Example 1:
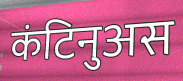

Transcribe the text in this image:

कंटिनुअस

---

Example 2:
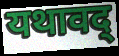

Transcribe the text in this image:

यथावद्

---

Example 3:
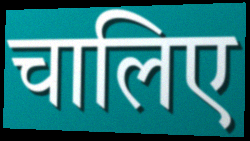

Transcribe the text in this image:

चालिए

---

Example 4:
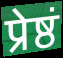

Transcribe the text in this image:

प्रेष्ठं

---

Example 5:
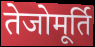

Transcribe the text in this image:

तेजोमूर्ति